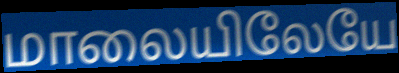
மாலையிலேயே